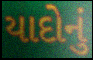
યાદોનું